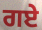
ਗਏ